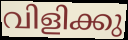
വിളിക്കു